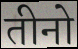
तीनो